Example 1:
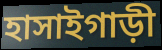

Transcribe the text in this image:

হাসাইগাড়ী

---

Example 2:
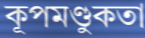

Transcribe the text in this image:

কূপমণ্ডুকতা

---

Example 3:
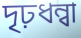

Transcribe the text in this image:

দৃঢ়ধন্বা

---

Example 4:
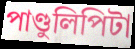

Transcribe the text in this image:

পাণ্ডুলিপিটা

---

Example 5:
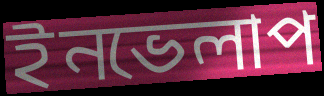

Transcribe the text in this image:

ইনভেলাপ